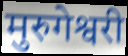
मुरुगेश्वरी